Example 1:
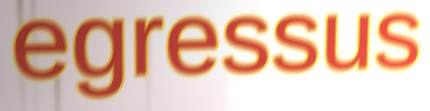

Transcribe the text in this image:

egressus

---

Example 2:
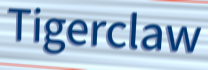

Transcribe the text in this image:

Tigerclaw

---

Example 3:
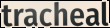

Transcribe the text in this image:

tracheal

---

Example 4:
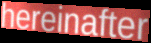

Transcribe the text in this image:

hereinafter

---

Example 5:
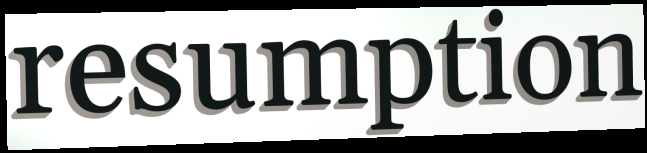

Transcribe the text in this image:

resumption